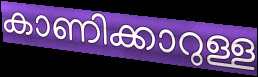
കാണിക്കാറുള്ള